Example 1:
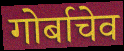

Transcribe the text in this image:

गोर्बाचेव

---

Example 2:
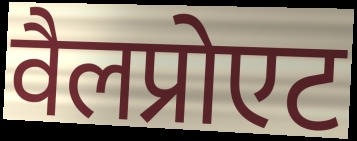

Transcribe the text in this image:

वैलप्रोएट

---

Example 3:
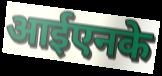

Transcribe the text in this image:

आईएनके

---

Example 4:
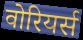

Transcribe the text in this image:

वोरियर्स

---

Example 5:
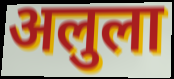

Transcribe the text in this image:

अलुला